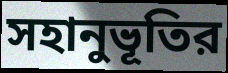
সহানুভূতির